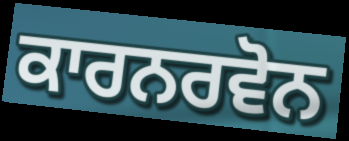
ਕਾਰਨਰਵੋਨ